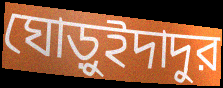
ঘোড়ুইদাদুর